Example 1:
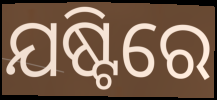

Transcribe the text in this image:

ଯଷ୍ଟିରେ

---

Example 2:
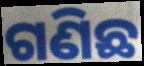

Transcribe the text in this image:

ଗଣିଛ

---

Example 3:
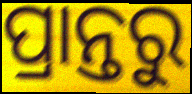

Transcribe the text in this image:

ପ୍ରାନ୍ତରୁ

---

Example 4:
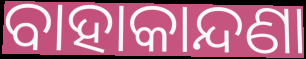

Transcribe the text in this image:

ବାହାକାନ୍ଦଣା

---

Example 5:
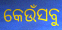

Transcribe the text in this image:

କେଉଁସବୁ